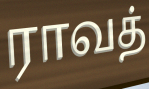
ராவத்